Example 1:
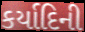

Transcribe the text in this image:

કર્યાદિની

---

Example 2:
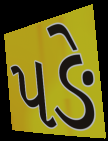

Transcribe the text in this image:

પઙે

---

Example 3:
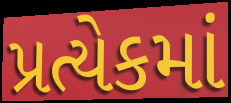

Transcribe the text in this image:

પ્રત્યેકમાં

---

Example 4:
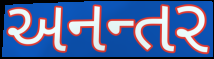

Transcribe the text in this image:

અનન્તર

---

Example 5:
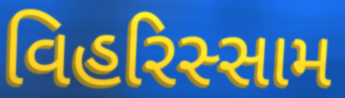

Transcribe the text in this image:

વિહરિસ્સામ